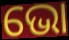
ଭୋ